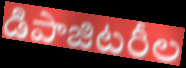
డిపాజిటరీల